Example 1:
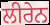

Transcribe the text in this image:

ਲੀਰੇਨ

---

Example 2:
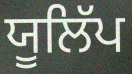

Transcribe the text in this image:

ਯੂਲਿੱਪ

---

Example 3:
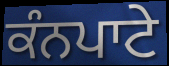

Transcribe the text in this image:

ਕੰਨਪਾਟੇ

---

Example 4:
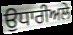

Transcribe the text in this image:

ਉਧਾਰੀਅਲੇ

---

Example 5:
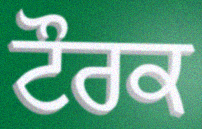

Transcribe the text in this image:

ਟੌਰਕ